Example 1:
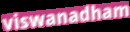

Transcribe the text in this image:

viswanadham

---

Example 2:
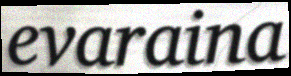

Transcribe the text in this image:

evaraina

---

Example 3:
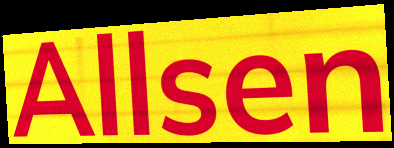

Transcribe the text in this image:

Allsen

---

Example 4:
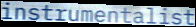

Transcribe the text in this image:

instrumentalist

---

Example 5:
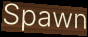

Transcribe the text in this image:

Spawn